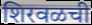
शिरवळची